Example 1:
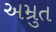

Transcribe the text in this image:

અમ્રુત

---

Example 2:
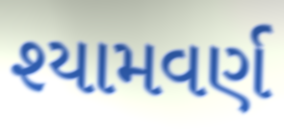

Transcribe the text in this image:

શ્યામવર્ણ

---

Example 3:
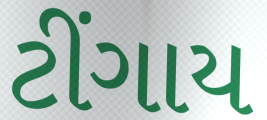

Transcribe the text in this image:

ટીંગાય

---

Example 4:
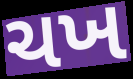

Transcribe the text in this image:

ચખ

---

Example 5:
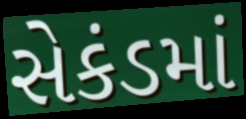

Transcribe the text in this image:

સેકંડમાં